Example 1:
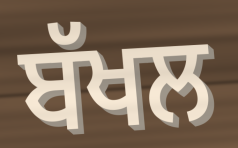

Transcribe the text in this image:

ਬੱਖਲ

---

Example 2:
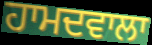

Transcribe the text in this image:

ਹਾਮਦਵਾਲਾ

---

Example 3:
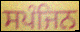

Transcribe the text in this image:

ਸਪੰਜਿਨ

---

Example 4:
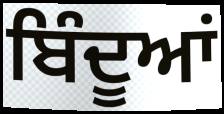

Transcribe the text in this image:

ਬਿੰਦੂਆਂ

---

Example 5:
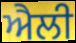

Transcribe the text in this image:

ਐਲੀ